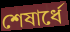
শেষার্ধে